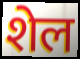
शेल